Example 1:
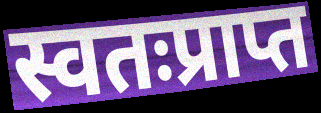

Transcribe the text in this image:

स्वतःप्राप्त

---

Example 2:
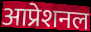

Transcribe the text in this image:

आप्रेशनल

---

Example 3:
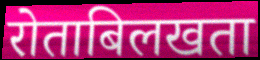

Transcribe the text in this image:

रोताबिलखता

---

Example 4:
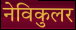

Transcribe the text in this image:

नेविकुलर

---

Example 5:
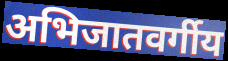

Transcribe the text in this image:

अभिजातवर्गीय